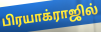
பிரயாக்ராஜில்